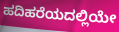
ಹದಿಹರೆಯದಲ್ಲಿಯೇ